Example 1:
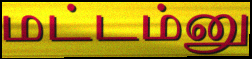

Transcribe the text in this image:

மட்டம்னு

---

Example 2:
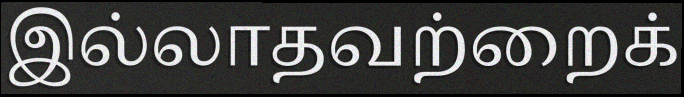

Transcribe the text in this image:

இல்லாதவற்றைக்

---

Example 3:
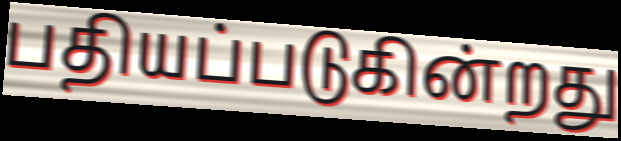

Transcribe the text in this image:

பதியப்படுகின்றது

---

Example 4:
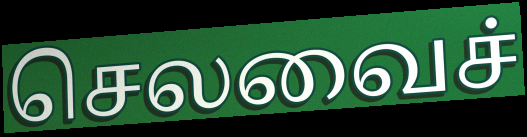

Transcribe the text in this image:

செலவைச்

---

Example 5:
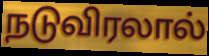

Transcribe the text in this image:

நடுவிரலால்